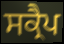
ਸਕ੍ਰੈਪ